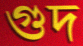
গুদ